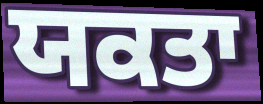
ਯਕਤਾ